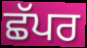
ਛੱਪਰ